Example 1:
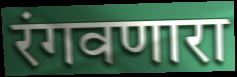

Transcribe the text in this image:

रंगवणारा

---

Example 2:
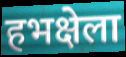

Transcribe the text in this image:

हभक्षेला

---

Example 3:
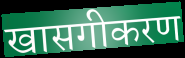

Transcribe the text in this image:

खासगीकरण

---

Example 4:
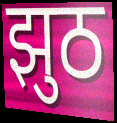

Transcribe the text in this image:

झुठ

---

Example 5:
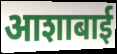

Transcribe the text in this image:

आशाबाई